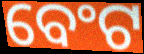
ବେଂଟ